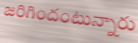
జరిగిందంటున్నారు